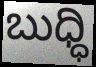
ಬುಧ್ಧಿ